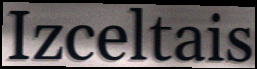
Izceltais